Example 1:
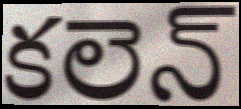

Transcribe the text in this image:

కలెన్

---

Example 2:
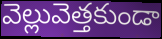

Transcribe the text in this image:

వెల్లువెత్తకుండా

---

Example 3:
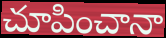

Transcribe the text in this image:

చూపించానా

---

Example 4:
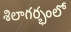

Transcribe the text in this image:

శిలాగర్భంలో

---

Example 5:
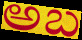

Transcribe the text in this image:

అబ